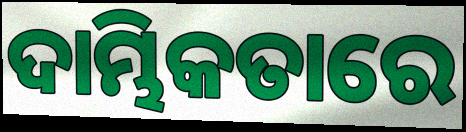
ଦାମ୍ଭିକତାରେ